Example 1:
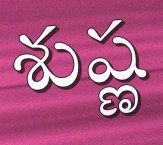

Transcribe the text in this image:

శుష్ణ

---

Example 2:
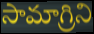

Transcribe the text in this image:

సామాగ్రిని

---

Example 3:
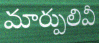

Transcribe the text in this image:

మార్పులివీ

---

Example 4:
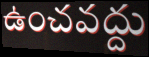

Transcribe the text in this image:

ఉంచవద్దు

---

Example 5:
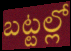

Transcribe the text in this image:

బట్టల్లో